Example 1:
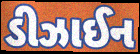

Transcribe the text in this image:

ડીઝાઈન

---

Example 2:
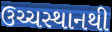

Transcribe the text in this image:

ઉચ્ચસ્થાનથી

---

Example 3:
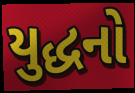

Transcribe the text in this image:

યુદ્ધનો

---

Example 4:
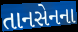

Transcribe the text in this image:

તાનસેનના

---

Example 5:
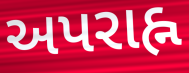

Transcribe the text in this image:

અપરાહ્ન